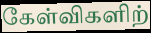
கேள்விகளிற்